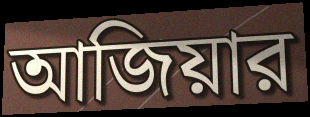
আজিয়ার